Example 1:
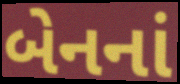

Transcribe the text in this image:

બેનનાં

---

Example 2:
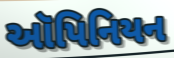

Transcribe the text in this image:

ઑપિનિયન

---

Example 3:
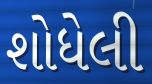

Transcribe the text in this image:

શોધેલી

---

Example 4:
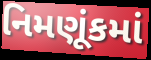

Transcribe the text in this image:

નિમણૂંકમાં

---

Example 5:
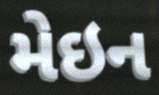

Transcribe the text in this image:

મેઇન